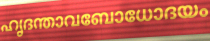
ഹൃദന്താവബോധോദയം